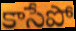
కాసేపో